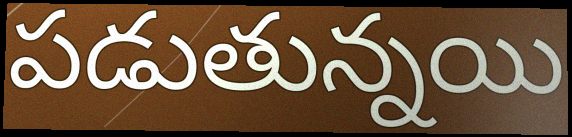
పడుతున్నయి